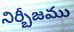
నిర్బీజము